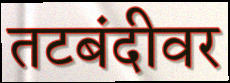
तटबंदीवर